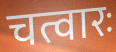
चत्वारः